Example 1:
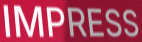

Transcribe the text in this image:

IMPRESS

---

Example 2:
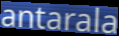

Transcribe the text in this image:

antarala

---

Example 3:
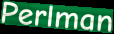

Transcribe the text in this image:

Perlman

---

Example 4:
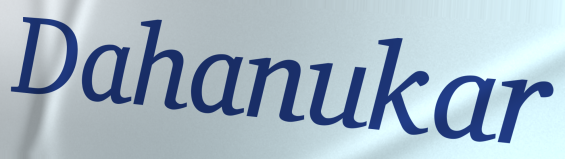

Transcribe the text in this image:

Dahanukar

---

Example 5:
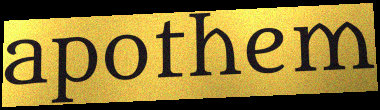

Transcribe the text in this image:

apothem